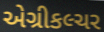
એગ્રીકલ્ચર